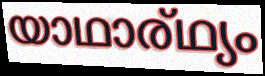
യാഥാര്ഥ്യം